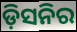
ଡ଼ିସନିର